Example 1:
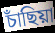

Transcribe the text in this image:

চাঁছিয়া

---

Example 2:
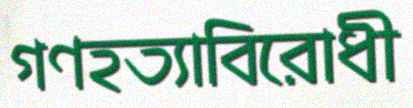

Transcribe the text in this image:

গণহত্যাবিরোধী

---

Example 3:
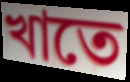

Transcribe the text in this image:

খাতে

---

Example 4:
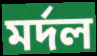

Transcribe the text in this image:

মর্দল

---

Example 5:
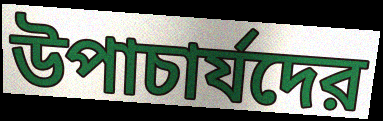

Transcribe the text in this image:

উপাচার্যদের